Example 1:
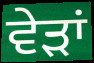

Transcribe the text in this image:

ਵੇੜਾਂ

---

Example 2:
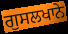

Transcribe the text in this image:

ਗੁਸਲਖਾਨੇ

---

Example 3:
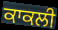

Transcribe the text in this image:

ਕਾਕਲੀ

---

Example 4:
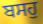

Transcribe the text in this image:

ਬਸਹੁ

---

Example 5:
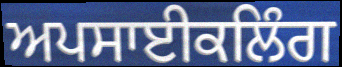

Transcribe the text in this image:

ਅਪਸਾਈਕਲਿੰਗ